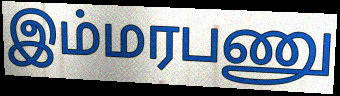
இம்மரபணு